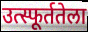
उत्स्फूर्ततेला